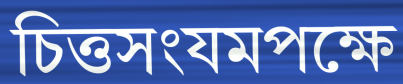
চিত্তসংযমপক্ষে